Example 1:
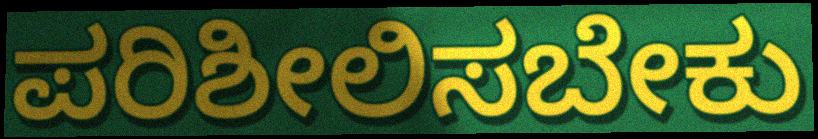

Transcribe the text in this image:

ಪರಿಶೀಲಿಸಬೇಕು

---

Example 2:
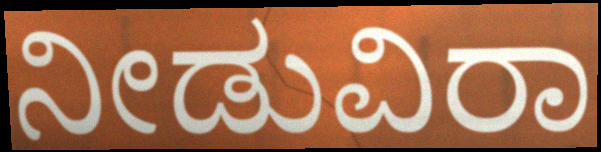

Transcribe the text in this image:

ನೀಡುವಿರಾ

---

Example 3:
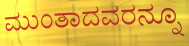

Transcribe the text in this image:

ಮುಂತಾದವರನ್ನೂ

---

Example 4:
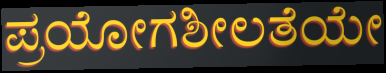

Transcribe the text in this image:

ಪ್ರಯೋಗಶೀಲತೆಯೇ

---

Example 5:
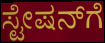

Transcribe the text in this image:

ಸ್ಟೇಷನ್‍ಗೆ